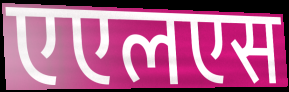
एएलएस